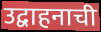
उद्वाहनाची